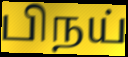
பிநய்